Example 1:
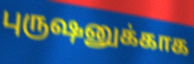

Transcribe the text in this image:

புருஷனுக்காக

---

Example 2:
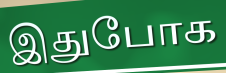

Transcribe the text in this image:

இதுபோக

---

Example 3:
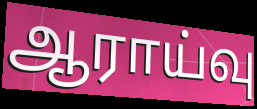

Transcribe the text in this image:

ஆராய்வு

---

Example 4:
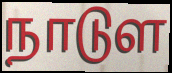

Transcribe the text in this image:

நாடுள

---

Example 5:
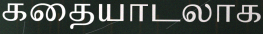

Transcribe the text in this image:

கதையாடலாக